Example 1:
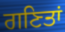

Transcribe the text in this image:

ਗਣਿਤਾਂ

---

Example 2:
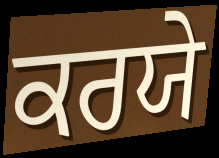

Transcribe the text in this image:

ਕਰਯੇ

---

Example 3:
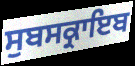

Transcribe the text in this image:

ਸੁਬਸਕ੍ਰਾਇਬ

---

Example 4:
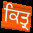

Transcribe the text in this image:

ਕਿਤ੍ਰ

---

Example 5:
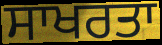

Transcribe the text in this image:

ਸਾਖਰਤਾ